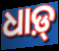
ଧାଡ଼୍